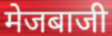
मेजबाजी